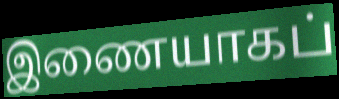
இணையாகப்